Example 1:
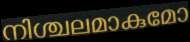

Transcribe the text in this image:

നിശ്ചലമാകുമോ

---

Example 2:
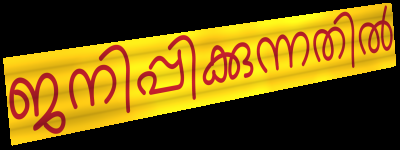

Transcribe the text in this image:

ജനിപ്പിക്കുന്നതിൽ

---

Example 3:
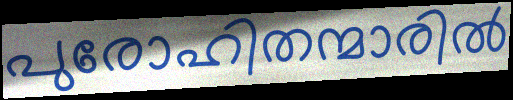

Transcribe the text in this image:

പുരോഹിതന്മാരിൽ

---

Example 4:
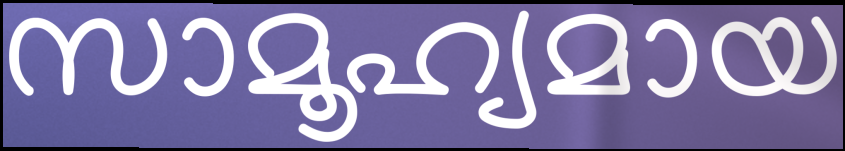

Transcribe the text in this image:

സാമൂഹ്യമായ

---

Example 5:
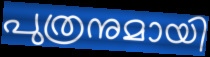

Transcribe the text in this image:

പുത്രനുമായി